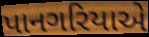
પાનગરિયાએ